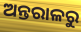
ଅନ୍ତରାଳରୁ